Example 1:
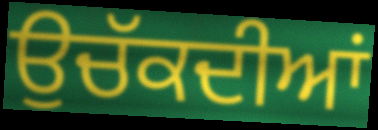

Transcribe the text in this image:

ਉਚੱਕਦੀਆਂ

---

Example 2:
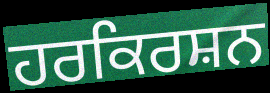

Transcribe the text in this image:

ਹਰਕਿਰਸ਼ਨ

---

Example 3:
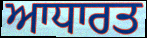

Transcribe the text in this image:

ਆਧਾਰਤ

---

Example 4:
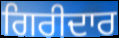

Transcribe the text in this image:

ਗਿਰੀਦਾਰ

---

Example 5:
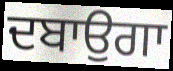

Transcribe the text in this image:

ਦਬਾਉਗਾ